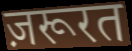
ज़रूरत